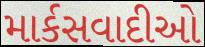
માર્કસવાદીઓ